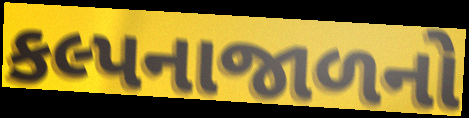
કલ્પનાજાળનો